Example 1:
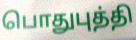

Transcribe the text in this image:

பொதுபுத்தி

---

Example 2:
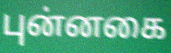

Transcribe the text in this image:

புன்னகை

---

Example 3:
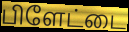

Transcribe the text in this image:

பிளேட்டை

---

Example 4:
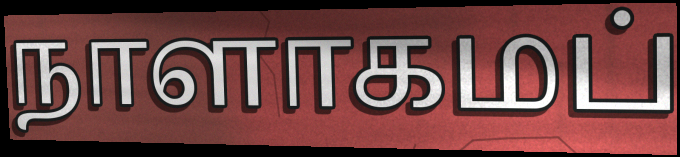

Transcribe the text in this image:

நாளாகமப்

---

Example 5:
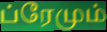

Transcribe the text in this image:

ப்ரேமும்